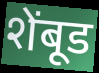
शेंबूड